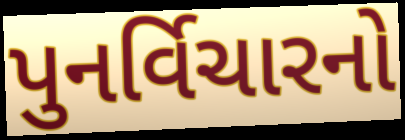
પુનર્વિચારનો